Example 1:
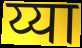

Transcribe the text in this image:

य्या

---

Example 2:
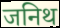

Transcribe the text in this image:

जनिथ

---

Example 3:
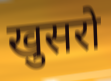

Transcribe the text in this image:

खुसरो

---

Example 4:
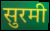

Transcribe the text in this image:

सुरमी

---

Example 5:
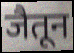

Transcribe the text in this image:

जैतून